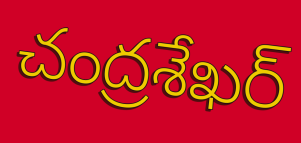
చంద్రశేఖర్